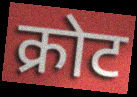
क्रोट